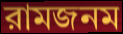
রামজনম